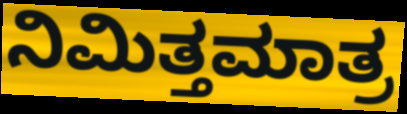
ನಿಮಿತ್ತಮಾತ್ರ